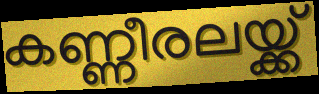
കണ്ണീരലയ്ക്ക്